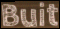
Buit